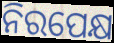
ନିରପେକ୍ଷ